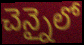
చెన్నైలో